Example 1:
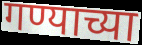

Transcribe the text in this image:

गण्याच्या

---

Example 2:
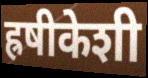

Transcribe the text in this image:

ह्रषीकेशी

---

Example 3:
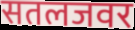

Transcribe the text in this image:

सतलजवर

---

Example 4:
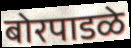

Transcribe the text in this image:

बोरपाडळे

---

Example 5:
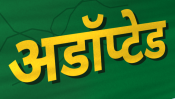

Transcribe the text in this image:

अडॉप्टेड